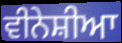
ਵੀਨੇਸ਼ੀਆ